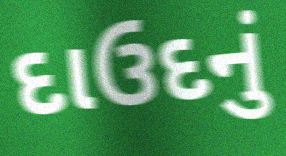
દાઉદનું